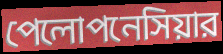
পেলোপনেসিয়ার